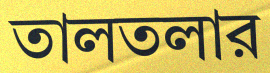
তালতলার